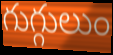
గుగ్గులుం